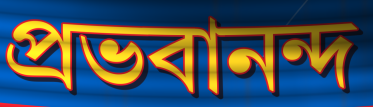
প্রভবানন্দ